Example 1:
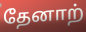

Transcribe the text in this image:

தேனாற்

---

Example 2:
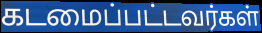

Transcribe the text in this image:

கடமைப்பட்டவர்கள்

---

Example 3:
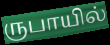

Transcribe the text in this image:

ருபாயில்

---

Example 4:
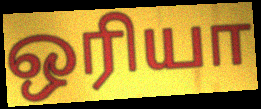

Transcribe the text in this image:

ஒரியா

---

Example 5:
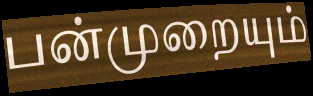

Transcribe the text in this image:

பன்முறையும்